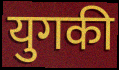
युगकी